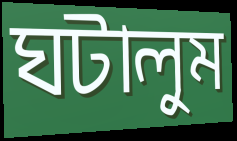
ঘটালুম